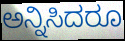
ಅನ್ನಿಸಿದರೂ